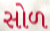
સોળ